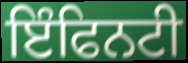
ਇੰਫਿਨਟੀ